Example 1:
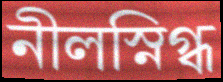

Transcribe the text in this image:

নীলস্নিগ্ধ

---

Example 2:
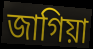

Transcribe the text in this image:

জাগিয়া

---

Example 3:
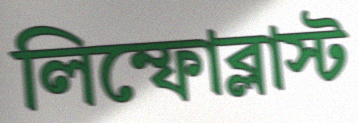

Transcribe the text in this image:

লিম্ফোব্লাস্ট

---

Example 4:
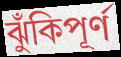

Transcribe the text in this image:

ঝুঁকিপূর্ণ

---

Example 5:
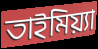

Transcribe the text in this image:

তাইমিয়্যা